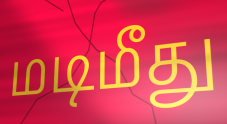
மடிமீது